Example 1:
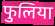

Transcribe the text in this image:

फुलिया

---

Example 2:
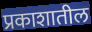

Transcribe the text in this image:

प्रकाशातील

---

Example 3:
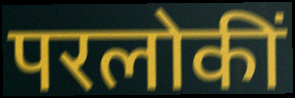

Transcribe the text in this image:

परलोकीं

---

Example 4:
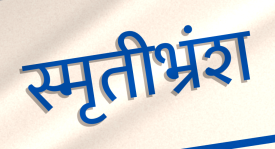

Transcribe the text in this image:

स्मृतीभ्रंश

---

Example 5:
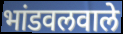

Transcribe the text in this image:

भांडवलवाले